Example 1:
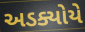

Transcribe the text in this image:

અડક્યોયે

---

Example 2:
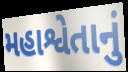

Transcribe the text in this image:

મહાશ્વેતાનું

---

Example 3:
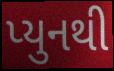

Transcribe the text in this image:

પ્યુનથી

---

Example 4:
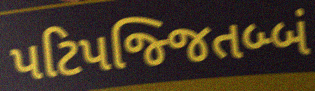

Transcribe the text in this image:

પટિપજ્જિતબ્બં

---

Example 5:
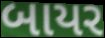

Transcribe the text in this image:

બાયર